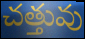
చత్తువు